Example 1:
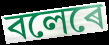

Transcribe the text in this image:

বলেৰে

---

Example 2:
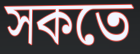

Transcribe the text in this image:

সকতে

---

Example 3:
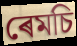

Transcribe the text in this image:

ৰেমচি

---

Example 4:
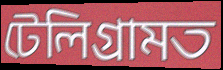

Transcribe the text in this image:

টেলিগ্ৰামত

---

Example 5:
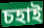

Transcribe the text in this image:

চহাই